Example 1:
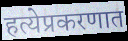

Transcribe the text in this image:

हत्येप्रकरणात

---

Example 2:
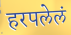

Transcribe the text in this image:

हरपलेलं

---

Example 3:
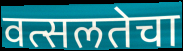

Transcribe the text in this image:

वत्सलतेचा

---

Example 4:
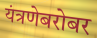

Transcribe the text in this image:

यंत्रणेबरोबर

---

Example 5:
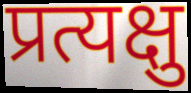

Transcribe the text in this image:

प्रत्यक्षु